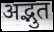
अद्भुत